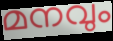
മനവും